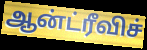
ஆன்ட்ரீவிச்